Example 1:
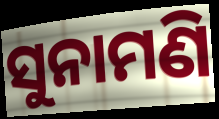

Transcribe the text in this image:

ସୁନାମଣି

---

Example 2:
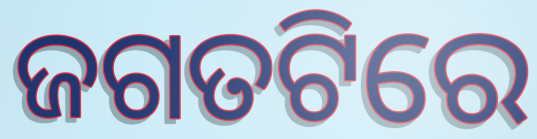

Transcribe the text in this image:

ଜଗତଟିରେ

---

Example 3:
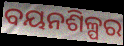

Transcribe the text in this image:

ବୟନଶିଳ୍ପର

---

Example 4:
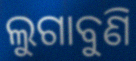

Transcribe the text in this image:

ଲୁଗାବୁଣି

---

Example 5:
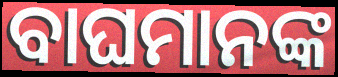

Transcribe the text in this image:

ବାଘମାନଙ୍କ